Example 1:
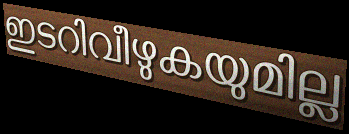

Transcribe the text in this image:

ഇടറിവീഴുകയുമില്ല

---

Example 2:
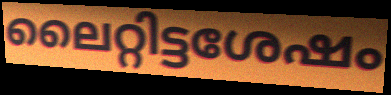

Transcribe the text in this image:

ലൈറ്റിട്ടശേഷം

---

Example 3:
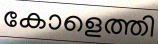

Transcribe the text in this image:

കോളെത്തി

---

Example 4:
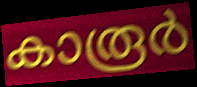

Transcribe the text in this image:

കാരൂർ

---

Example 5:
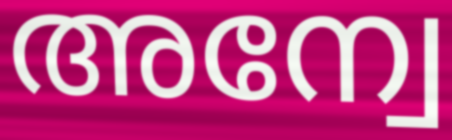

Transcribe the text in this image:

അന്വേ